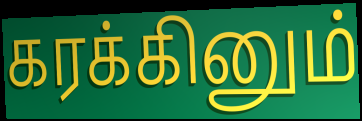
கரக்கினும்